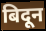
बिदून